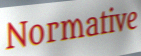
Normative